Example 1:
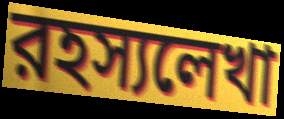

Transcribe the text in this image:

রহস্যলেখা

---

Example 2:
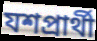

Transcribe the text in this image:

যশপ্রার্থী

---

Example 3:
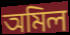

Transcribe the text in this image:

অমিল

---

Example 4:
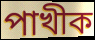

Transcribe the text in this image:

পাখীক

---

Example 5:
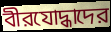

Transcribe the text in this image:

বীরযোদ্ধাদের